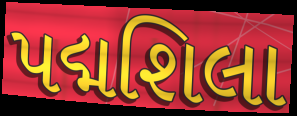
પદ્મશિલા